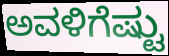
ಅವಳಿಗೆಷ್ಟು